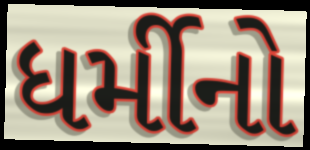
ધર્મીનો